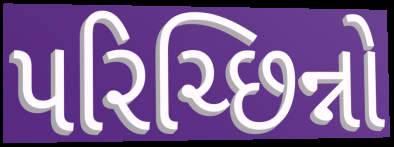
પરિચ્છિન્નો